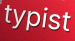
typist